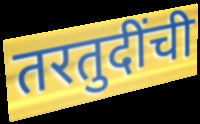
तरतुदींची